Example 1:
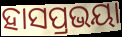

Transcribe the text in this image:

ହାସପ୍ରଭୟା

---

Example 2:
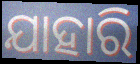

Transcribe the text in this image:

ଯାହାରି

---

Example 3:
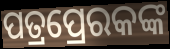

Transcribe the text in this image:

ପତ୍ରପ୍ରେରକଙ୍କ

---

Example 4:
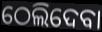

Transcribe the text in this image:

ଠେଲିଦେବା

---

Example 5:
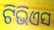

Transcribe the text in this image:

ଟିଭିଏସ